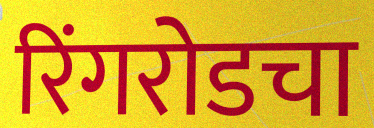
रिंगरोडचा